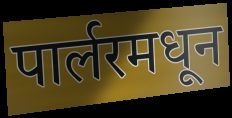
पार्लरमधून